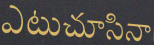
ఎటుచూసినా